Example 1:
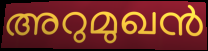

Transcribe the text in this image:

അറുമുഖൻ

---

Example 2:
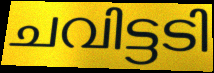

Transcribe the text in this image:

ചവിട്ടടി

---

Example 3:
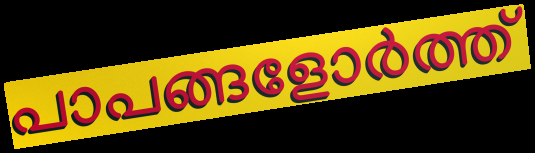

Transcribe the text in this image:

പാപങ്ങളോർത്ത്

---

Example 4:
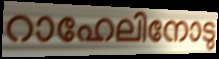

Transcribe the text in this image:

റാഹേലിനോടു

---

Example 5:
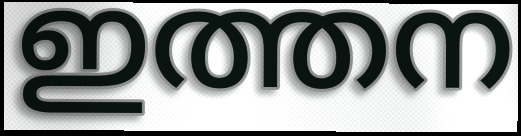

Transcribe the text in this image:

ഇത്തന